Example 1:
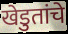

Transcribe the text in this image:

खेडुतांचे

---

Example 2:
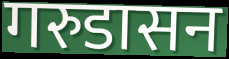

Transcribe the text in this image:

गरुडासन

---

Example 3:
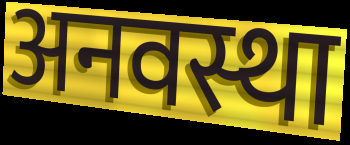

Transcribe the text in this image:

अनवस्था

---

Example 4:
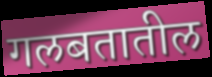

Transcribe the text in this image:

गलबतातील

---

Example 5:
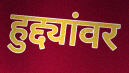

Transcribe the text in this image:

हुद्द्यांवर